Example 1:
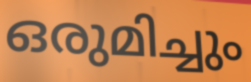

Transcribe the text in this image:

ഒരുമിച്ചും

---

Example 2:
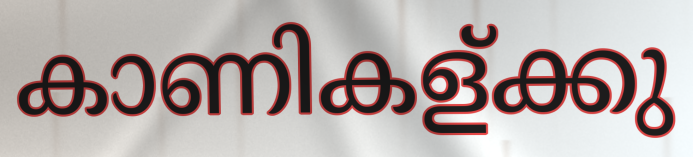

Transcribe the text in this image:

കാണികള്ക്കു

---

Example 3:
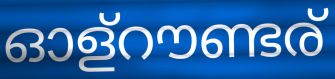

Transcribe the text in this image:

ഓള്റൗണ്ടര്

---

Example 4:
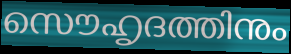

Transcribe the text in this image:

സൌഹൃദത്തിനും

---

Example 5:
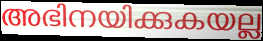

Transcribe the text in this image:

അഭിനയിക്കുകയല്ല